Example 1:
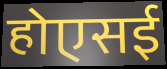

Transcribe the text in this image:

होएसई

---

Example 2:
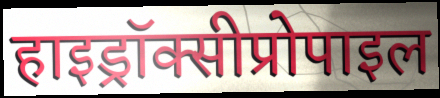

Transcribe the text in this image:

हाइड्रॉक्सीप्रोपाइल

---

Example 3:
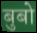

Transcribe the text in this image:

बुबो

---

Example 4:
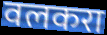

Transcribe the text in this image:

वलकरा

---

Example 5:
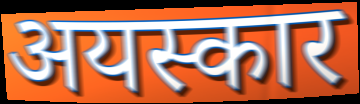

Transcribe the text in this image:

अयस्कार